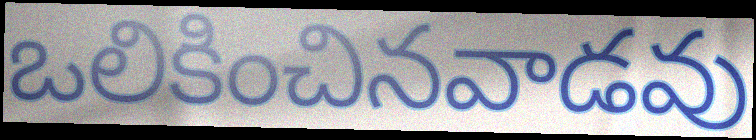
ఒలికించినవాడవు